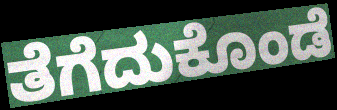
ತೆಗೆದುಕೊಂಡೆ